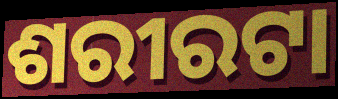
ଶରୀରଟା